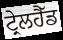
ਟ੍ਰੇਲਹੈੱਡ